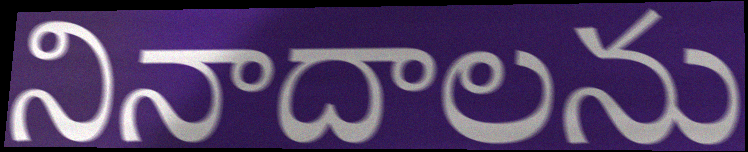
నినాదాలను